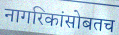
नागरिकांसोबतच